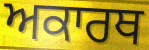
ਅਕਾਰਥ